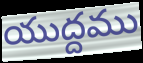
యుద్దము